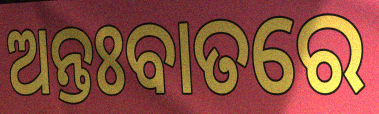
ଅନ୍ତଃବାତରେ